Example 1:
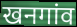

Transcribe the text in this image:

खनगांव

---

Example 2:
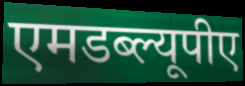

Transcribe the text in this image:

एमडब्ल्यूपीए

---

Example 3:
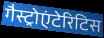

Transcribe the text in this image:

गैस्ट्रोएंटेरिटिस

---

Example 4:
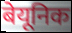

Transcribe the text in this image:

बेयूनिक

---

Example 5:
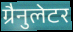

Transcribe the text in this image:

ग्रैनुलेटर